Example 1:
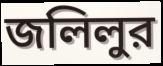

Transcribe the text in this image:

জলিলুর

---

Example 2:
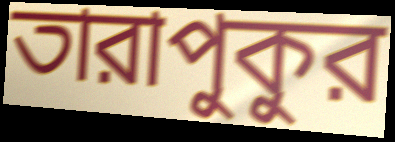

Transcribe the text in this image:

তারাপুকুর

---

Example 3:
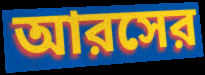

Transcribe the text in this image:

আরসের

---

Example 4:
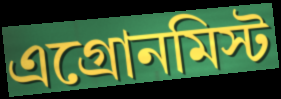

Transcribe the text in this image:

এগ্রোনমিস্ট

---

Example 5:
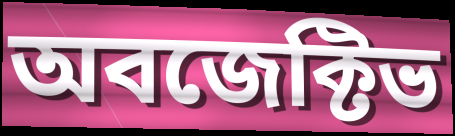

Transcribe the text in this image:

অবজেক্টিভ